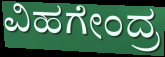
ವಿಹಗೇಂದ್ರ